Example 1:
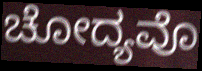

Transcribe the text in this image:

ಚೋದ್ಯವೊ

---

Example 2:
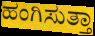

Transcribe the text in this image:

ಹಂಗಿಸುತ್ತಾ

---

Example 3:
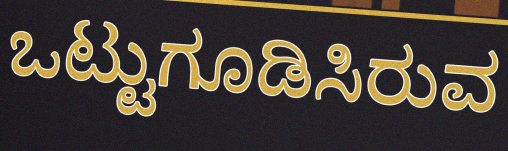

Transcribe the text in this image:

ಒಟ್ಟುಗೂಡಿಸಿರುವ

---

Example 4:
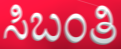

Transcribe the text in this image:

ಸಿಬಂತಿ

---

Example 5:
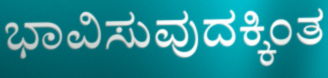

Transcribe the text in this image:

ಭಾವಿಸುವುದಕ್ಕಿಂತ